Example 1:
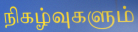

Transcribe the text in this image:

நிகழ்வுகளும்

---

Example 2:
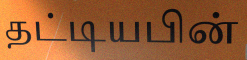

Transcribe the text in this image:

தட்டியபின்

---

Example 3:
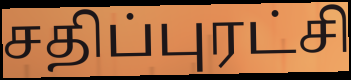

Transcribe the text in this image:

சதிப்புரட்சி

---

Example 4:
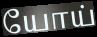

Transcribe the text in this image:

யோய்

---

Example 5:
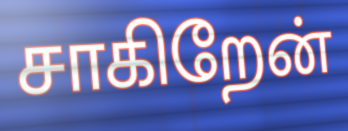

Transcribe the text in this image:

சாகிறேன்